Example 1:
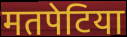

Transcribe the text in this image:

मतपेटिया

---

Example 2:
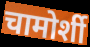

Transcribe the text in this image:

चामोर्शी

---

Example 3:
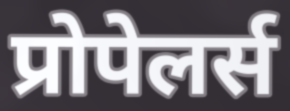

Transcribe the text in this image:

प्रोपेलर्स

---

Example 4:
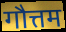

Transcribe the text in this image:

गौत्तम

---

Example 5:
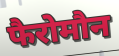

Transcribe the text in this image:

फैरोमौन